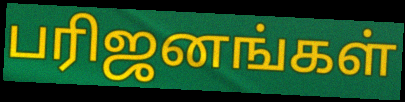
பரிஜனங்கள்